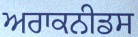
ਅਰਾਕਨੀਡਸ